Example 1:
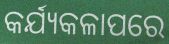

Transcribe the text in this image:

କର୍ଯ୍ୟକଳାପରେ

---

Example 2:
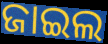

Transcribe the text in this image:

ଜାଇଲ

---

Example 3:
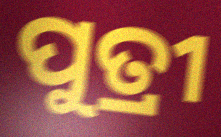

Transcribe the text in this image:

ପୁତ୍ରୀ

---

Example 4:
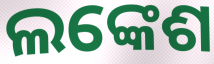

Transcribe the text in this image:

ଲଙ୍କେଶ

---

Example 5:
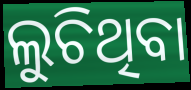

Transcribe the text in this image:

ଲୁଚିଥିବା